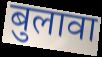
बुलावा